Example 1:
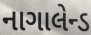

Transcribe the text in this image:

નાગાલેન્ડ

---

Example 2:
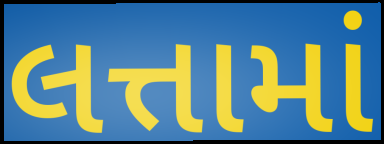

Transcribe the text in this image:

લત્તામાં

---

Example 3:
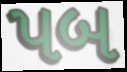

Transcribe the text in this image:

પબ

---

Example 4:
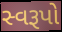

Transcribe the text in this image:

સ્વરૂપો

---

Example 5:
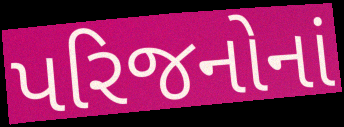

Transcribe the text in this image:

પરિજનોનાં